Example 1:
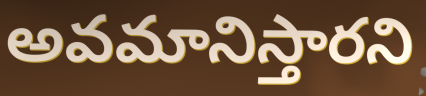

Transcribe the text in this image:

అవమానిస్తారని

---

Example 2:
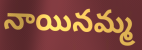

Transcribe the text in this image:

నాయినమ్మ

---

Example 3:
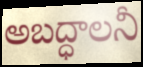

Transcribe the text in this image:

అబద్ధాలనీ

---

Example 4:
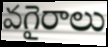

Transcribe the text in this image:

వగైరాలు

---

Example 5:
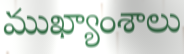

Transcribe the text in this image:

ముఖ్యాంశాలు